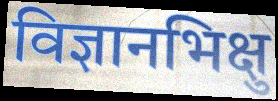
विज्ञानभिक्षु